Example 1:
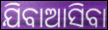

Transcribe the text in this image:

ଯିବାଆସିବା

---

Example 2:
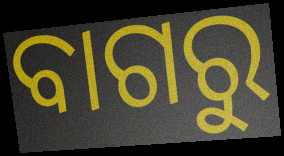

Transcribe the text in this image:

ବାଗରୁ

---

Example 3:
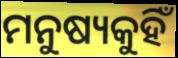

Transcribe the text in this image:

ମନୁଷ୍ୟକୁହିଁ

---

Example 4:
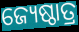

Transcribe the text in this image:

ଜ୍ୟେଷ୍ଠାତ୍ର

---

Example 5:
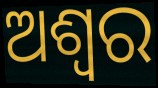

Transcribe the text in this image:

ଅଶ୍ୱର